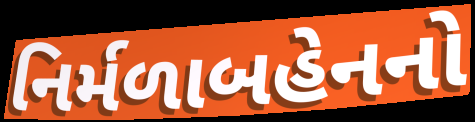
નિર્મળાબહેનનો